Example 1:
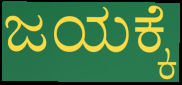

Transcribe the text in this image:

ಜಯಕ್ಕೆ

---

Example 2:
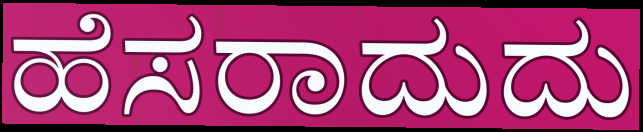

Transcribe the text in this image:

ಹೆಸರಾದುದು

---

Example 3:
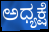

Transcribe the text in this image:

ಅಧ್ಯಕ್ಷೆ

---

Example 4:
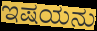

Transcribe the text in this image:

ಇಷಯನು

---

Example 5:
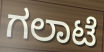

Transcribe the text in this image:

ಗಲಾಟೆ